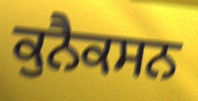
ਕੁਨੈਕਸਨ